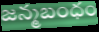
జన్మబంధం